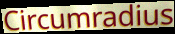
Circumradius